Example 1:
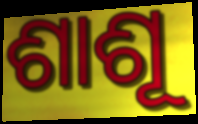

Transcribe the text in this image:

ଶାଶୂ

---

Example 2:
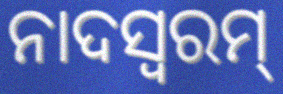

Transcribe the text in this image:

ନାଦସ୍ଵରମ୍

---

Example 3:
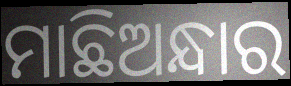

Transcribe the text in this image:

ମାଛିଅନ୍ଧାର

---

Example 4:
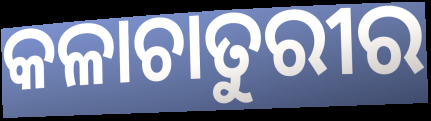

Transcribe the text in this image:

କଳାଚାତୁରୀର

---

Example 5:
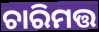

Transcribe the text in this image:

ଚାରିମତ୍ତ